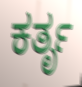
ಕರ್ತೃ